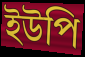
ইউপি